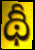
థీ